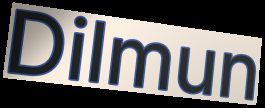
Dilmun